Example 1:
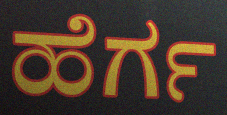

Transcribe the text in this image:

ಹೆರ್ಗ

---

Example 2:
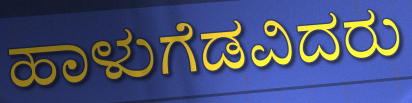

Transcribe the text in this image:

ಹಾಳುಗೆಡವಿದರು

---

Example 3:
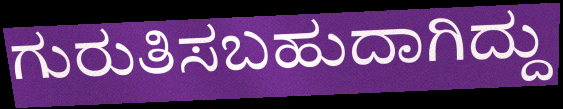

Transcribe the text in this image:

ಗುರುತಿಸಬಹುದಾಗಿದ್ದು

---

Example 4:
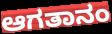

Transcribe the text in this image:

ಆಗತಾನಂ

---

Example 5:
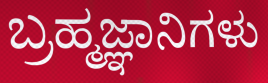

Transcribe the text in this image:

ಬ್ರಹ್ಮಜ್ಞಾನಿಗಳು